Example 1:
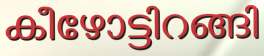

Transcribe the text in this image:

കീഴോട്ടിറങ്ങി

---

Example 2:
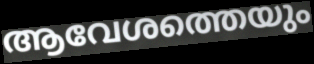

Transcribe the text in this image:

ആവേശത്തെയും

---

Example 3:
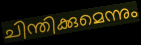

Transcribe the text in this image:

ചിന്തിക്കുമെന്നും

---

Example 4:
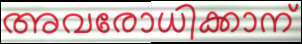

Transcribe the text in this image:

അവരോധിക്കാന്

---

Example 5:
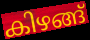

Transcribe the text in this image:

കിഴങ്ങ്